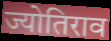
ज्योतिराव